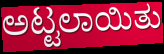
ಅಟ್ಟಲಾಯಿತು